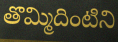
తొమ్మిదింటిని